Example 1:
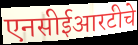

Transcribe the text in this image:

एनसीईआरटीचे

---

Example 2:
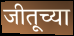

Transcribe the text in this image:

जीतूच्या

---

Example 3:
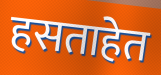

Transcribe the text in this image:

हसताहेत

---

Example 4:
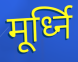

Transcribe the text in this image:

मूर्ध्नि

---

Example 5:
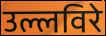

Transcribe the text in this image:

उल्लविरे